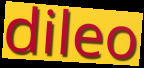
dileo